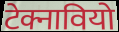
टेक्नावियो